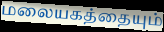
மலையகத்தையும்